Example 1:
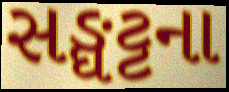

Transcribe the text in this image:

સઙ્ઘટ્ટના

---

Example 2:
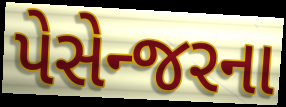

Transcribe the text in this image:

પેસેન્જરના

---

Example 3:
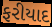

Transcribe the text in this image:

ફરીયાદ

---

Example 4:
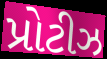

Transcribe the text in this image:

પ્રોટીઝ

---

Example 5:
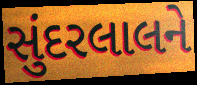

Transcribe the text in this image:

સુંદરલાલને